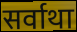
सर्वाथा